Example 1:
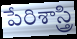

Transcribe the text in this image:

పేరిశాస్త్రి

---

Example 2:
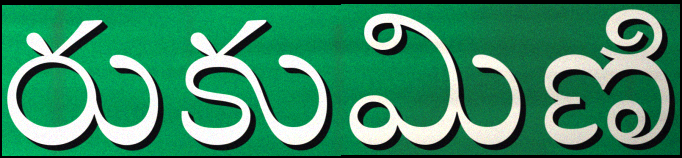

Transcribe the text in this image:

రుకుమిణి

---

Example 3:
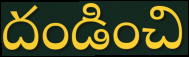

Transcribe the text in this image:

దండించి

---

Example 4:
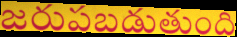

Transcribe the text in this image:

జరుపబడుతుంది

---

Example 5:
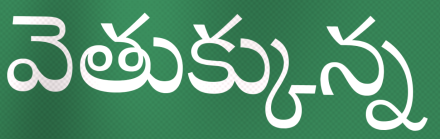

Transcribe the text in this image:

వెతుక్కున్న